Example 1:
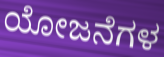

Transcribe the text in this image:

ಯೋಜನೆಗಳ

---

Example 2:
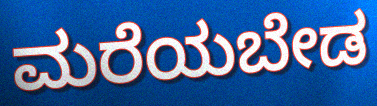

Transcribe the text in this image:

ಮರೆಯಬೇಡ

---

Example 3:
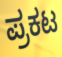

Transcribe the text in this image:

ಪ್ರಕಟ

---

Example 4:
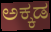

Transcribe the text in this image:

ಅಕ್ಕಡ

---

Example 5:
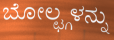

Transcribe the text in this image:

ಬೋಲ್ಟ್ಗಳನ್ನು